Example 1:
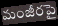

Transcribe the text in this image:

మంజీరపై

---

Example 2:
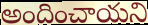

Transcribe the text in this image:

అందించాయని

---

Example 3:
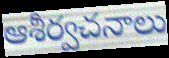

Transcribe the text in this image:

ఆశీర్వచనాలు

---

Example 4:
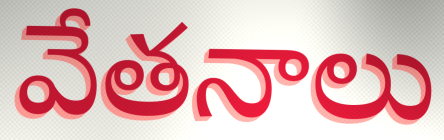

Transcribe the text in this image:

వేతనాలు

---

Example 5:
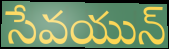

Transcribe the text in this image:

సేవయున్